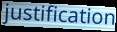
justification